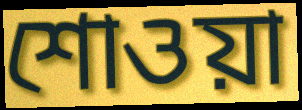
শোওয়া